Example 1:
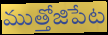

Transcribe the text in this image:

ముత్తోజిపేట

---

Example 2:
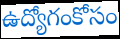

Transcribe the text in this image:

ఉద్యోగంకోసం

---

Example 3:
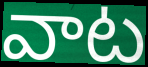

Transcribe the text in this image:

వాట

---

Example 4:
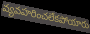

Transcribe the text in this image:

వ్యవహరించలేకపోయారు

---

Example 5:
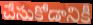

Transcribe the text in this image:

చేసుకోడానికీ